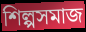
শিল্পসমাজ